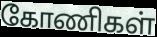
கோணிகள்